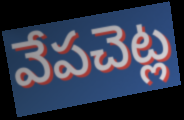
వేపచెట్ల